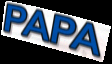
PAPA